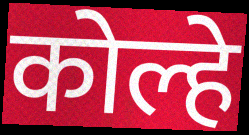
कोल्हे